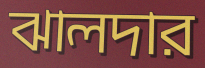
ঝালদার